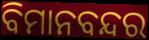
ବିମାନବନ୍ଦର